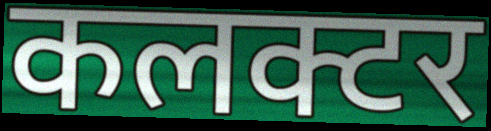
कलक्टर